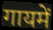
गायमें